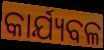
କାର୍ଯ୍ୟବଳ